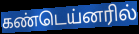
கண்டெய்னரில்